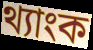
থ্যাংক